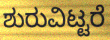
ಶುರುವಿಟ್ಟರೆ